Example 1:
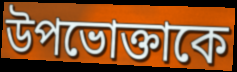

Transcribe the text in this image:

উপভোক্তাকে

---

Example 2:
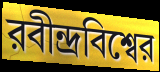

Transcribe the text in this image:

রবীন্দ্রবিশ্বের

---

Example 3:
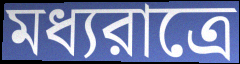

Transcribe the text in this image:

মধ্যরাত্রে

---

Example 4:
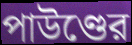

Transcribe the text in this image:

পাউণ্ডের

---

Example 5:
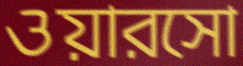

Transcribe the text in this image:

ওয়ারসো